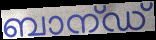
ബാന്ഡ്